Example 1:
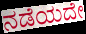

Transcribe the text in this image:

ನಡೆಯದೇ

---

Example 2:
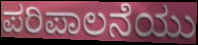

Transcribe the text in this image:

ಪರಿಪಾಲನೆಯು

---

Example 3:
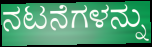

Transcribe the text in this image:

ನಟನೆಗಳನ್ನು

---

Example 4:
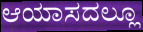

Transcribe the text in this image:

ಆಯಾಸದಲ್ಲೂ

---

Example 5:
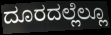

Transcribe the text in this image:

ದೂರದಲ್ಲೆಲ್ಲೂ